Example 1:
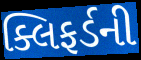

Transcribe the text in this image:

ક્લિફર્ડની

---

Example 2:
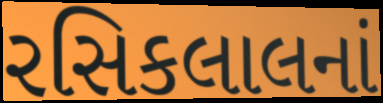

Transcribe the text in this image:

રસિકલાલનાં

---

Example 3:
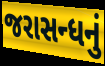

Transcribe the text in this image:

જરાસન્ધનું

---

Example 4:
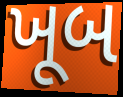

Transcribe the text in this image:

ખૂબ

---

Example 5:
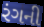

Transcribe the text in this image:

રંગની